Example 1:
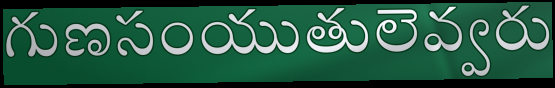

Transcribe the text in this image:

గుణసంయుతులెవ్వరు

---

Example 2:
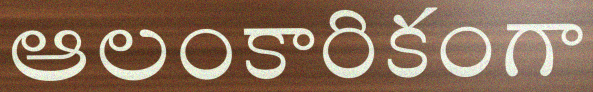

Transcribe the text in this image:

ఆలంకారికంగా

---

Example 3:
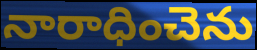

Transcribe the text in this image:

నారాధించెను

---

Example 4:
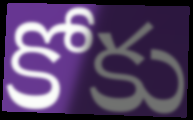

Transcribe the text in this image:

కోకు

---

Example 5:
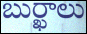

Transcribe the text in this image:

బుర్ఖాలు